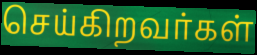
செய்கிறவர்கள்